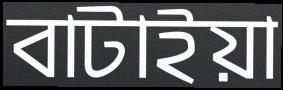
বাটাইয়া